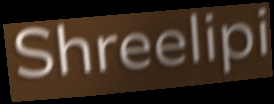
Shreelipi